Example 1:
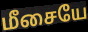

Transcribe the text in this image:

மீசையே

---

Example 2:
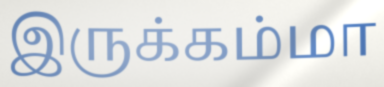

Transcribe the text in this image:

இருக்கம்மா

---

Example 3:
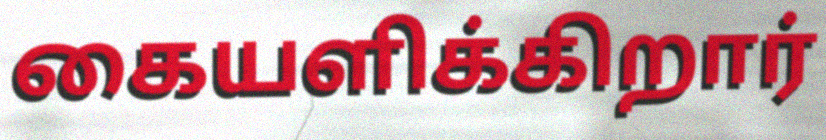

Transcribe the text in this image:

கையளிக்கிறார்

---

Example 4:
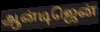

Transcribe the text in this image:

ஆன்டிஜென்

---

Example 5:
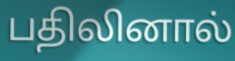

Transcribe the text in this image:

பதிலினால்